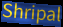
Shripal